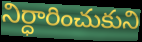
నిర్ధారించుకుని